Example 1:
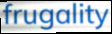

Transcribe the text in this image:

frugality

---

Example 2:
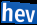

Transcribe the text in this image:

hev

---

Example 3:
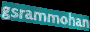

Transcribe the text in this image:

gsrammohan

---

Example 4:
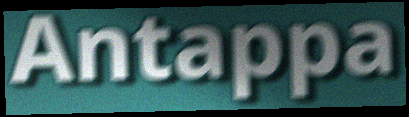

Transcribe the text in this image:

Antappa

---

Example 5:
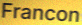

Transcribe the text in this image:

Francon